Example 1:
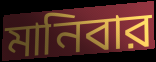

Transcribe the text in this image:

মানিবার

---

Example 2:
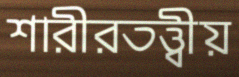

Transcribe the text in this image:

শারীরতত্ত্বীয়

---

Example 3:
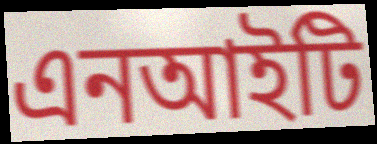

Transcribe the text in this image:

এনআইটি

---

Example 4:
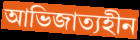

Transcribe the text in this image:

আভিজাত্যহীন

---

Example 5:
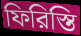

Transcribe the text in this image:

ফিরিস্তি